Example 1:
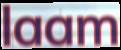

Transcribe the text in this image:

laam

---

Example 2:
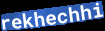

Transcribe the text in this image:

rekhechhi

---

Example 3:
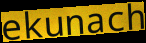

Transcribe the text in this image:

ekunach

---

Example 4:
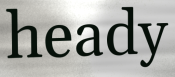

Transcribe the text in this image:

heady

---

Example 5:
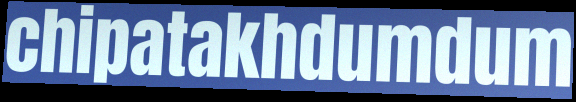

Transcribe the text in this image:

chipatakhdumdum